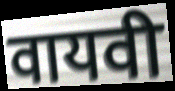
वायवी